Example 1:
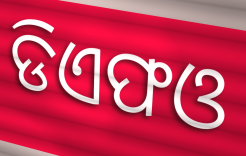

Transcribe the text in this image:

ଡିଏଫଓ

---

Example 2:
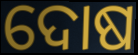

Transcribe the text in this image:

ଦୋଷ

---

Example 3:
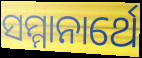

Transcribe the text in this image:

ସମ୍ମାନାର୍ଥେ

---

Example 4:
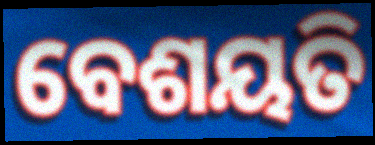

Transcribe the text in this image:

ବେଶୟତି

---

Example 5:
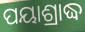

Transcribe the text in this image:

ପୟାଶ୍ରାଦ୍ଧ